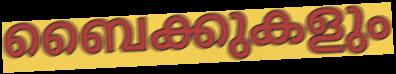
ബൈക്കുകളും